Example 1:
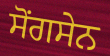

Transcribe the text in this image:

ਸੋਂਗਸੇਨ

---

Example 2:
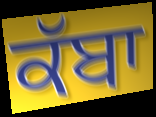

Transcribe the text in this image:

ਕੱਬਾ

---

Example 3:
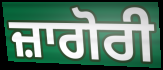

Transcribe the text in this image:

ਜ਼ਾਗੋਰੀ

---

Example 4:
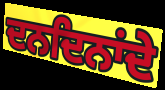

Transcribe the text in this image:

ਦਨਦਿਨਾਂਦੇ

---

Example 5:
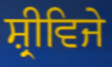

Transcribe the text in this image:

ਸ਼੍ਰੀਵਿਜੇ